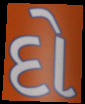
દો